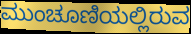
ಮುಂಚೂಣಿಯಲ್ಲಿರುವ